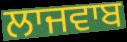
ਲਾਜਵਾਬ